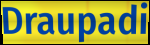
Draupadi